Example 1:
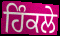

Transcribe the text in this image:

ਹਿੰਕਲੇ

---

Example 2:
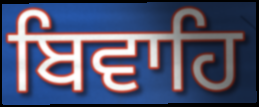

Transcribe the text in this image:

ਬਿਵਾਹਿ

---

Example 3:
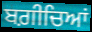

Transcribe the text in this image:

ਬਗ਼ੀਚਿਆਂ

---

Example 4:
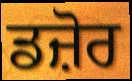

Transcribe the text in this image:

ਡਜ਼ੋਰ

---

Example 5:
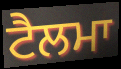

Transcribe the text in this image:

ਟੈਲਮਾ